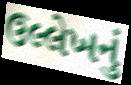
ઉલ્લેખનું